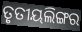
ତୃତୀୟଲିଙ୍ଗର